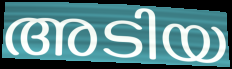
അടിയ